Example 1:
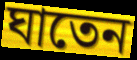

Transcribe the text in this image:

ঘাতেন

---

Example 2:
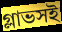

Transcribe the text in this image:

গ্লাভসই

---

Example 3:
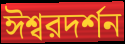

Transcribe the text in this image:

ঈশ্বরদর্শন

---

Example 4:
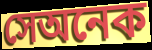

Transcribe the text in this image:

সেঅনেক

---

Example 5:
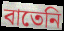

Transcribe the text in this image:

বাতেনি